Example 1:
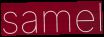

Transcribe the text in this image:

samel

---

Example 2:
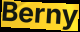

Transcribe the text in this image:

Berny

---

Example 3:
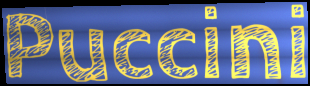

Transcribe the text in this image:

Puccini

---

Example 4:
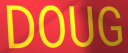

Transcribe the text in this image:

DOUG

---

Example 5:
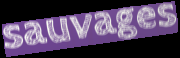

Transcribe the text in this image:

sauvages